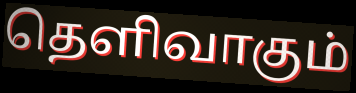
தெளிவாகும்